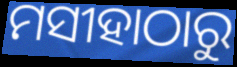
ମସୀହାଠାରୁ